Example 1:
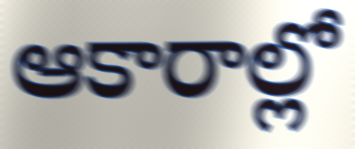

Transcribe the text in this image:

ఆకారాల్లో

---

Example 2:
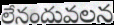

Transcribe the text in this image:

లేనందువలన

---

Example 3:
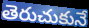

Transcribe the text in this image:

తెరుచుకునే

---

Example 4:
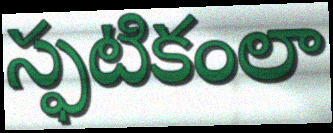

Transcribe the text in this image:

స్ఫటికంలా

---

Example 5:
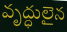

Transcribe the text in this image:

వృద్ధులైన